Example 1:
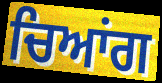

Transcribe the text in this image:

ਚਿਆਂਗ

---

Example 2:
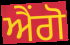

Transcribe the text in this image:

ਐਂਗੋ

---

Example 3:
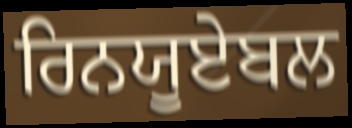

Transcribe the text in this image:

ਰਿਨਯੂਏਬਲ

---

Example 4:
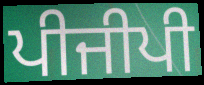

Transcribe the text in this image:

ਪੀਜੀਪੀ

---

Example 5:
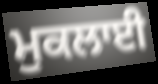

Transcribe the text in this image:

ਮੁਕਲਾਈ